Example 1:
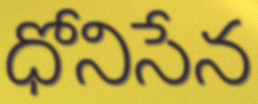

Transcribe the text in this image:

ధోనిసేన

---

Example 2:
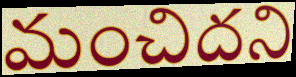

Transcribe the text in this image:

మంచిదని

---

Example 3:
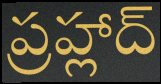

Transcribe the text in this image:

ప్రహ్లాద్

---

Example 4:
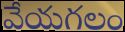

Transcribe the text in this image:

వేయగలం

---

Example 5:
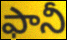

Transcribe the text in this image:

ఫానీ